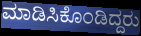
ಮಾಡಿಸಿಕೊಂಡಿದ್ದರು